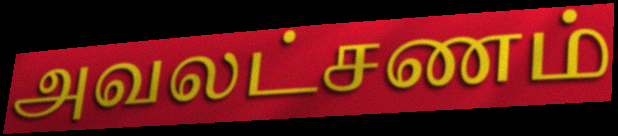
அவலட்சணம்